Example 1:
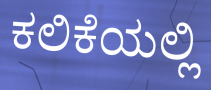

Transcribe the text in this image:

ಕಲಿಕೆಯಲ್ಲಿ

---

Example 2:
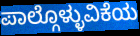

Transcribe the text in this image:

ಪಾಲ್ಗೊಳ್ಳುವಿಕೆಯ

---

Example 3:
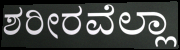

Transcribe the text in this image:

ಶರೀರವೆಲ್ಲಾ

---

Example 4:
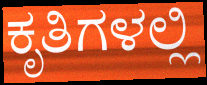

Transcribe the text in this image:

ಕೃತಿಗಳಲ್ಲಿ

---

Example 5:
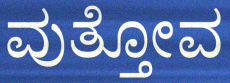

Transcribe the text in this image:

ವುತ್ತೋವ